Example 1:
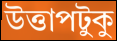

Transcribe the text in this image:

উত্তাপটুকু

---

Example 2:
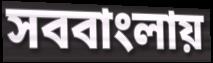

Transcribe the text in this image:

সববাংলায়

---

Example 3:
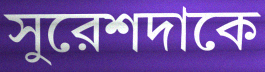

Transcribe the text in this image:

সুরেশদাকে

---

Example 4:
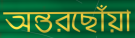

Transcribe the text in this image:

অন্তরছোঁয়া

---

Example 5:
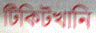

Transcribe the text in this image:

টিকিটখানি